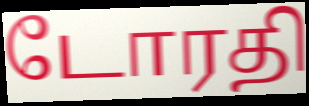
டோரதி